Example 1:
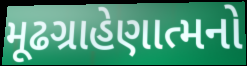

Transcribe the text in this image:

મૂઢગ્રાહેણાત્મનો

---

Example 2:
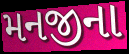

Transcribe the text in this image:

મનજીના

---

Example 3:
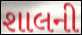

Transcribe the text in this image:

શાલની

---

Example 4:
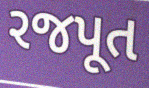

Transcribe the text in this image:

રજપૂત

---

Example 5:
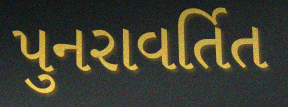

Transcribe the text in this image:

પુનરાવર્તિત